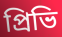
প্রিভি